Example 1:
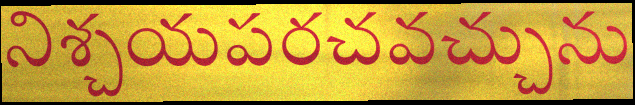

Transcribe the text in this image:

నిశ్చయపరచవచ్చును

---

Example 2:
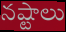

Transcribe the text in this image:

నష్టాలు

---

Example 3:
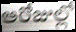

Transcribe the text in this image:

ఆరోజుల్లో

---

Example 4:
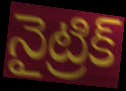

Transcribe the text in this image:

నైట్రిక్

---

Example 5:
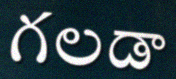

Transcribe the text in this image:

గలడా